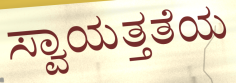
ಸ್ವಾಯತ್ತತೆಯ